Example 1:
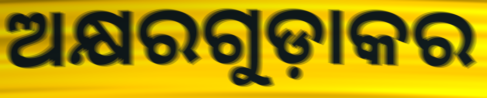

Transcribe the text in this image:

ଅକ୍ଷରଗୁଡ଼ାକର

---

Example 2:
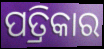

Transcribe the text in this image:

ପତ୍ରିକାର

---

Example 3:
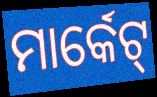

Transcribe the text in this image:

ମାର୍କେଟ୍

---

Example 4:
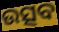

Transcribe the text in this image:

ଉତ୍ସବ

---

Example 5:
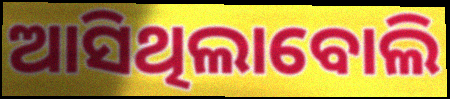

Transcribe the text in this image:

ଆସିଥିଲାବୋଲି